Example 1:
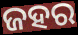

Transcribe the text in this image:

ଜହର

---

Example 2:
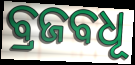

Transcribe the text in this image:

ବ୍ରଜବଧୂ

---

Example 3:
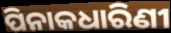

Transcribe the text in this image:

ପିନାକଧାରିଣୀ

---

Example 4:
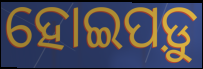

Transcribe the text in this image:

ହୋଇପଡ଼ୁ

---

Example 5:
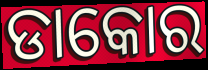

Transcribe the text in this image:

ଡାକୋର